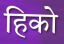
हिको